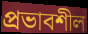
প্রভাবশীল